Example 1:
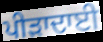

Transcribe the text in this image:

ਪੀੜਾਦਾਈ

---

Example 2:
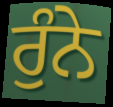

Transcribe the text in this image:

ਰੁੰਨੇ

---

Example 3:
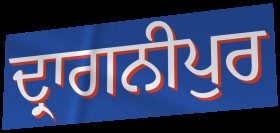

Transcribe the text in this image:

ਦ੍ਰਾਗਨੀਪੁਰ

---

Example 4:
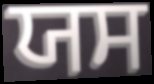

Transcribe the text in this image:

ਯਸ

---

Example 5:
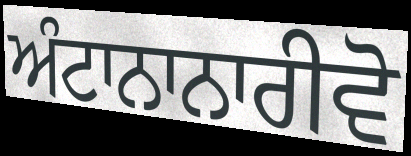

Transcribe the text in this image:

ਅੰਟਾਨਾਨਾਰੀਵੋ